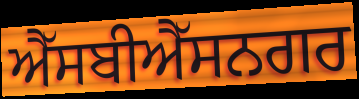
ਐੱਸਬੀਐੱਸਨਗਰ